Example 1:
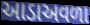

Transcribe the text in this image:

આડાઅવળા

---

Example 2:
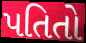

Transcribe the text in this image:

પતિતો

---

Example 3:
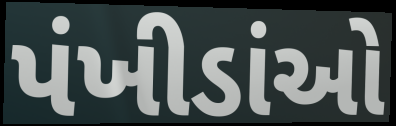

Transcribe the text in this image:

પંખીડાંઓ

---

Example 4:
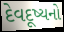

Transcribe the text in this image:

દેવદૂષ્યનો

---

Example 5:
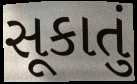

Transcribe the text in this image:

સૂકાતું